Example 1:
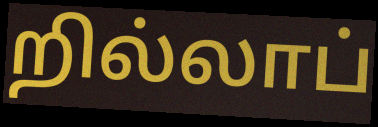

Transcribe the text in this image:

றில்லாப்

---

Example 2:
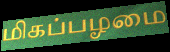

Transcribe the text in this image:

மிகப்பழமை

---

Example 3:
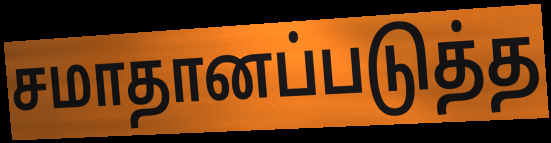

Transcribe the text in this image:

சமாதானப்படுத்த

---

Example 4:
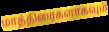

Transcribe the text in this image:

மாத்திரைகளாகவும்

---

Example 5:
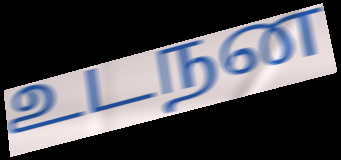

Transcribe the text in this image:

உடநன